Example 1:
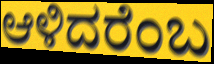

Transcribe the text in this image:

ಆಳಿದರೆಂಬ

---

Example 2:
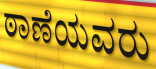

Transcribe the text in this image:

ಠಾಣೆಯವರು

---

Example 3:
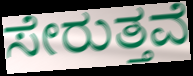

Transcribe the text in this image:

ಸೇರುತ್ತವೆ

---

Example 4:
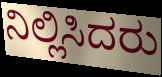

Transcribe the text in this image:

ನಿಲ್ಲಿಸಿದರು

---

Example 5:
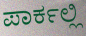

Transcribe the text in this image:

ಪಾರ್ಕಲ್ಲಿ